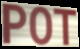
POT